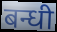
बन्धी